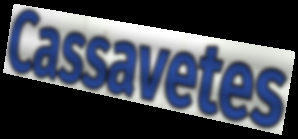
Cassavetes